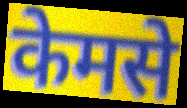
केमसे